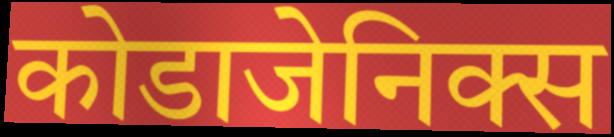
कोडाजेनिक्स